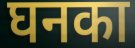
घनका